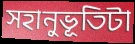
সহানুভূতিটা